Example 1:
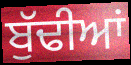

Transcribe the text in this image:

ਬੁੱਢੀਆਂ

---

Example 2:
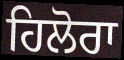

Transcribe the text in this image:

ਹਿਲੋਰਾ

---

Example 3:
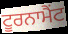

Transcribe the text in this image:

ਟੂਰਨਾਮੈਂਟ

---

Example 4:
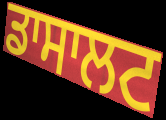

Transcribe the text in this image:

ਡਾਸਾਲਟ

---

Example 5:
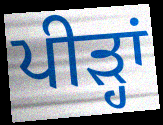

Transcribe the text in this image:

ਪੀੜ੍ਹਾਂ